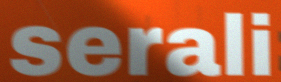
serali